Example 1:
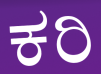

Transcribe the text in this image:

ಕರಿ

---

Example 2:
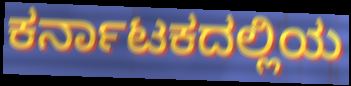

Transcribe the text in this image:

ಕರ್ನಾಟಕದಲ್ಲಿಯ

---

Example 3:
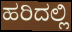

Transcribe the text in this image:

ಹರಿದಲ್ಲಿ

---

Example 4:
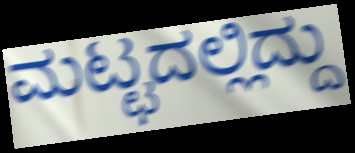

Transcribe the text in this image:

ಮಟ್ಟದಲ್ಲಿದ್ದು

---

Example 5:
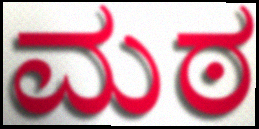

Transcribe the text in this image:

ಮಠ